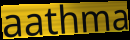
aathma